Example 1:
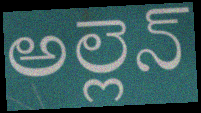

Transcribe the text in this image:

అల్లెన్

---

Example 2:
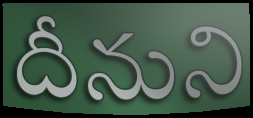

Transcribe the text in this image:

దీనుని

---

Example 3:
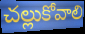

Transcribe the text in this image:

చల్లుకోవాలి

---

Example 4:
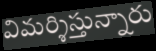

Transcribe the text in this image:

విమర్శిస్తున్నారు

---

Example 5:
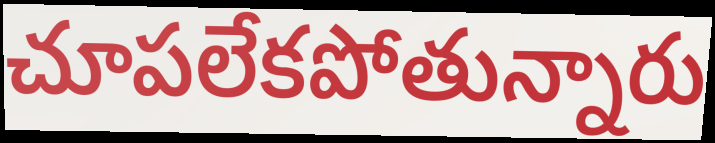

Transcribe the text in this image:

చూపలేకపోతున్నారు